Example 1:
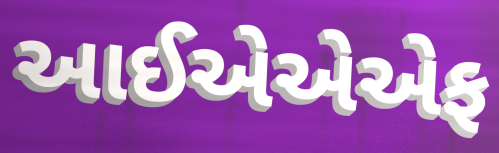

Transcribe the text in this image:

આઈએએએફ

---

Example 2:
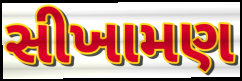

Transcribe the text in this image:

સીખામણ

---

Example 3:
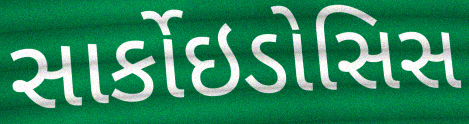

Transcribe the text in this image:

સાર્કોઇડોસિસ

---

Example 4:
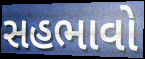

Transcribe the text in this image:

સહભાવો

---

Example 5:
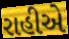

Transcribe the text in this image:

રાહીએ